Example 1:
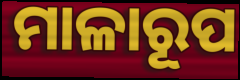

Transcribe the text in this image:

ମାଳାରୂପ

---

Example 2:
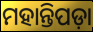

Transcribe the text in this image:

ମହାନ୍ତିପଡ଼ା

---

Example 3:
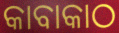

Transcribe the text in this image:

କାବାକାଠ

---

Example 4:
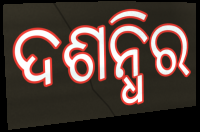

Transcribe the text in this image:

ଦଶନ୍ଧିର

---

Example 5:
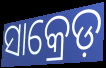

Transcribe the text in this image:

ସାକ୍ରେଡ଼